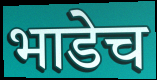
भाडेच